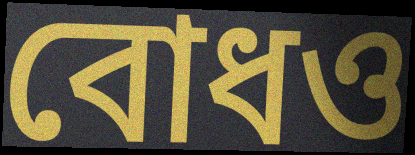
বোধও